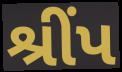
શ્રીંપ